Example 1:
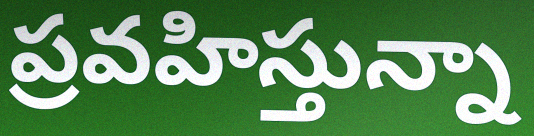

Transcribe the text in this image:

ప్రవహిస్తున్నా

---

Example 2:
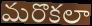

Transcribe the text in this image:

మరొకలా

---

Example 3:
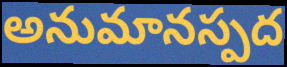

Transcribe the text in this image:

అనుమానస్పద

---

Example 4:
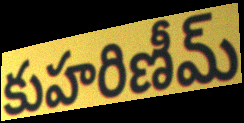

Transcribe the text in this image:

కుహరిణీమ్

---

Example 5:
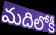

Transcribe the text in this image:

మదిలోకీ